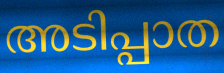
അടിപ്പാത